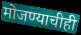
मोजण्याचीही